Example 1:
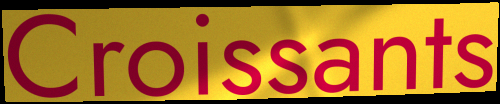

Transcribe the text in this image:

Croissants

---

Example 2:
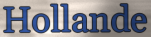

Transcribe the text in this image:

Hollande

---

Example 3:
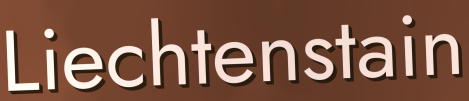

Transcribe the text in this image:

Liechtenstain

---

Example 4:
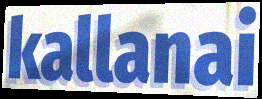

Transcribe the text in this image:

kallanai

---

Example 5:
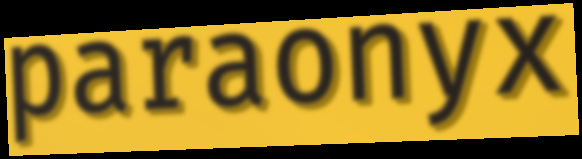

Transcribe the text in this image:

paraonyx